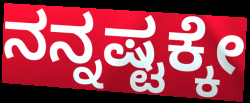
ನನ್ನಷ್ಟಕ್ಕೇ